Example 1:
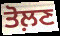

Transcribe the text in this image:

ਤੋਲ਼ਣ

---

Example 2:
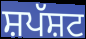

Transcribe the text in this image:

ਸ਼ਪੱਸ਼ਟ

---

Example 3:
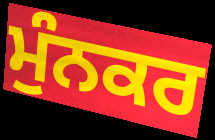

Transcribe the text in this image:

ਮੁੰਨਕਰ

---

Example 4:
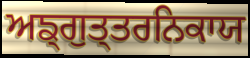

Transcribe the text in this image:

ਅਙ੍ਗੁਤ੍ਤਰਨਿਕਾਯ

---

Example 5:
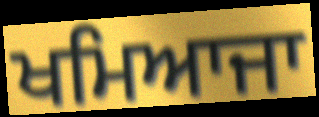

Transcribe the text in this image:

ਖਮਿਆਜਾ